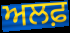
ਅਲਫ਼